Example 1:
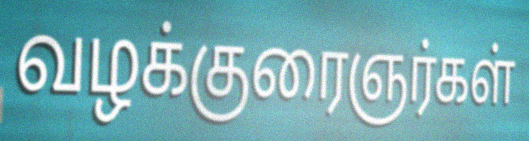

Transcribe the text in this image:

வழக்குரைஞர்கள்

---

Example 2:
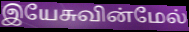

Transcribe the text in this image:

இயேசுவின்மேல்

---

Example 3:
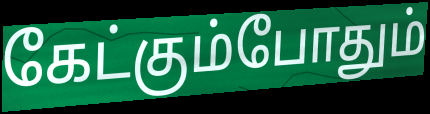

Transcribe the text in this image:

கேட்கும்போதும்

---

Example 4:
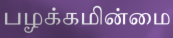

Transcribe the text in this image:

பழக்கமின்மை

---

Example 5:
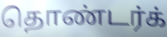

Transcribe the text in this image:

தொண்டர்க்